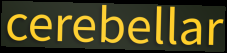
cerebellar